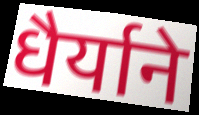
धैर्याने